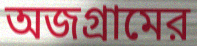
অজগ্রামের